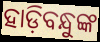
ହାଡ଼ିବନ୍ଧୁଙ୍କ